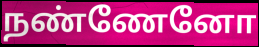
நண்ணேனோ